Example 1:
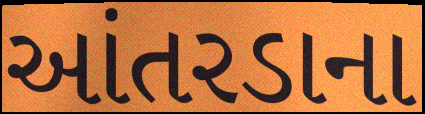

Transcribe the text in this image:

આંતરડાના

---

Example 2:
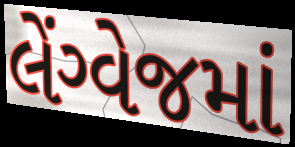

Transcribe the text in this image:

લેંગ્વેજમાં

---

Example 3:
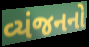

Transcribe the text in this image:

વ્યંજનનો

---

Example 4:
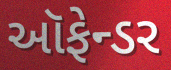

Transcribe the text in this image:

ઑફેન્ડર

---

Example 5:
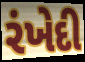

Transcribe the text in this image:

રંખેદી